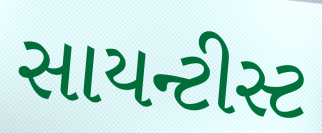
સાયન્ટીસ્ટ